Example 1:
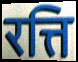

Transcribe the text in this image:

रत्ति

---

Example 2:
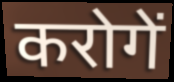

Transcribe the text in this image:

करोगें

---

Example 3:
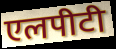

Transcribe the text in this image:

एलपीटी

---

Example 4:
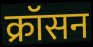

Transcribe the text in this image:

क्रॉसन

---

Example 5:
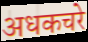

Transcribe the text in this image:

अधकचरे